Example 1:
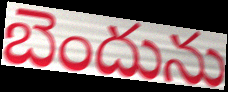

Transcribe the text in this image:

బెందును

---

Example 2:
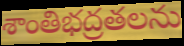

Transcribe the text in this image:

శాంతిభద్రతలను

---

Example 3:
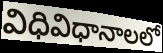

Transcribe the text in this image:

విధివిధానాలలో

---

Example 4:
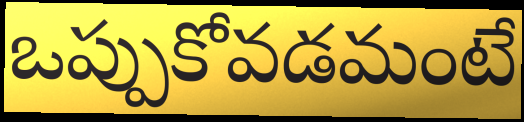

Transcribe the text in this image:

ఒప్పుకోవడమంటే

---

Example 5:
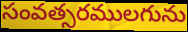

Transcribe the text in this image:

సంవత్సరములగును